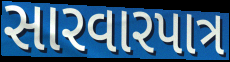
સારવારપાત્ર